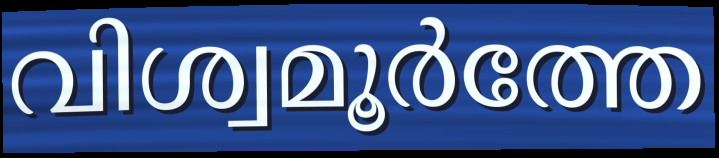
വിശ്വമൂർത്തേ